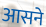
आसने